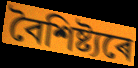
বৈশিষ্ট্যৰে